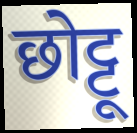
छोट्टू